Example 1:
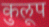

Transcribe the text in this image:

कुलूप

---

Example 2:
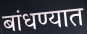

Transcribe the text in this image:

बांधण्‍यात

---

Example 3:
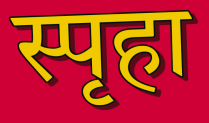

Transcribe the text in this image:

स्पृहा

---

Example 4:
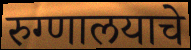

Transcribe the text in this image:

रुग्णालयाचे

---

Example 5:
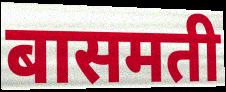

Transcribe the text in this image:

बासमती